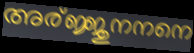
അര്ജ്ജുനനനെ